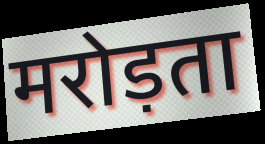
मरोड़ता